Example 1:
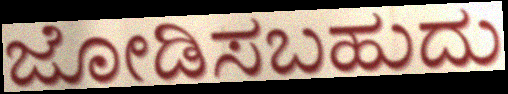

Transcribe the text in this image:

ಜೋಡಿಸಬಹುದು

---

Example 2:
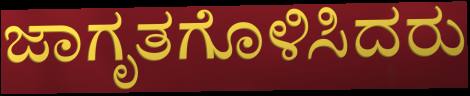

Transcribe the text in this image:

ಜಾಗೃತಗೊಳಿಸಿದರು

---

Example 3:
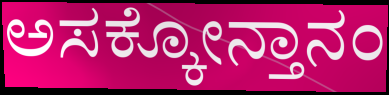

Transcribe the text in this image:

ಅಸಕ್ಕೋನ್ತಾನಂ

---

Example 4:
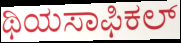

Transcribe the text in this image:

ಥಿಯಸಾಫಿಕಲ್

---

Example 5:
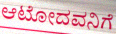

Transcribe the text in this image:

ಆಟೋದವನಿಗೆ